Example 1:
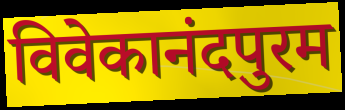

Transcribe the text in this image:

विवेकानंदपुरम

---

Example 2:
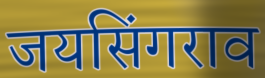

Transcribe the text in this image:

जयसिंगराव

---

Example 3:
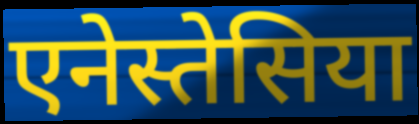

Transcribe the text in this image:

एनेस्तेसिया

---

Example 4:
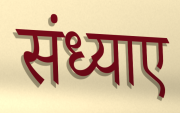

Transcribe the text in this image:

संध्याए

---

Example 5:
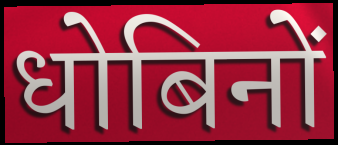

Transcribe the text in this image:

धोबिनों